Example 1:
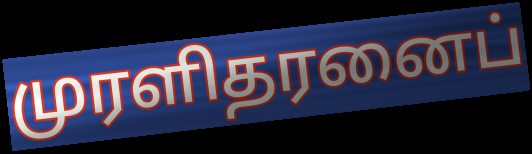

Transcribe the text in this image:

முரளிதரனைப்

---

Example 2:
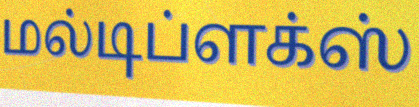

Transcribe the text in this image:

மல்டிப்ளக்ஸ்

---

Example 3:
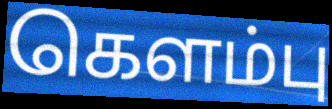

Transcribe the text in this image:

கௌம்பு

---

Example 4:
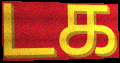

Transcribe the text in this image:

டக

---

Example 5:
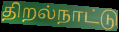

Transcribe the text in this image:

திறல்நாட்டு